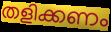
തളിക്കണം